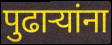
पुढाऱ्यांना